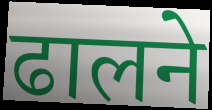
ढालने